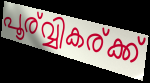
പൂര്വ്വികര്ക്ക്